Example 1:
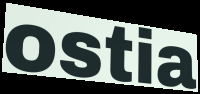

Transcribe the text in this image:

ostia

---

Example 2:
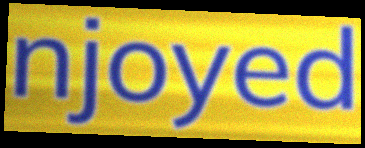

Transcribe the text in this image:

njoyed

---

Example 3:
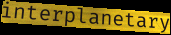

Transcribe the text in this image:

interplanetary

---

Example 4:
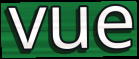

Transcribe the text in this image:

vue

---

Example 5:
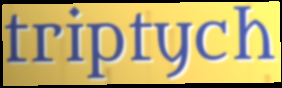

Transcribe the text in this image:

triptych